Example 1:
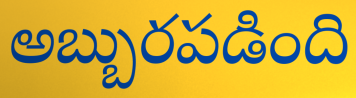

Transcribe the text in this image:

అబ్బురపడింది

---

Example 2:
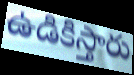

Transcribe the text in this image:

ఉడికిస్తారు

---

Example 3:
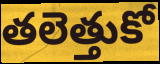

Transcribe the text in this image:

తలెత్తుకో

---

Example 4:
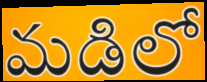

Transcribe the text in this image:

మడిలో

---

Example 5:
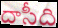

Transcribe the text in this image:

దాసీది